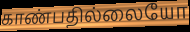
காண்பதில்லையோ